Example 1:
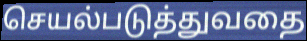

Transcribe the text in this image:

செயல்படுத்துவதை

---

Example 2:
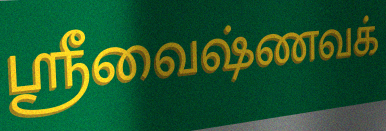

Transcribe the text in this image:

ஸ்ரீவைஷ்ணவக்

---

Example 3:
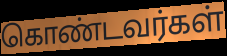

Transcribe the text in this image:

கொண்டவர்கள்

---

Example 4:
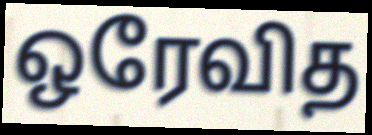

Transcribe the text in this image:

ஒரேவித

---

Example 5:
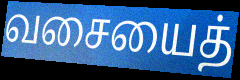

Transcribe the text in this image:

வசையைத்